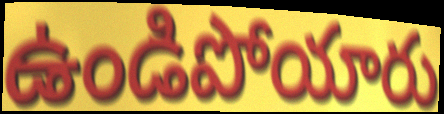
ఉండిపోయారు